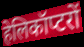
हेलिकॉप्टरों